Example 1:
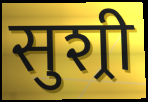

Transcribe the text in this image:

सुश्री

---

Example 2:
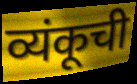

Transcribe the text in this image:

व्यंकूची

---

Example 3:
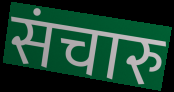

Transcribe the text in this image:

संचारु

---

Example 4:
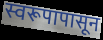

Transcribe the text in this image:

स्वरूपापासून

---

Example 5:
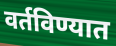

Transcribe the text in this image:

वर्तविण्यात